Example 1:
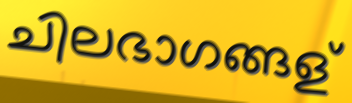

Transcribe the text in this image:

ചിലഭാഗങ്ങള്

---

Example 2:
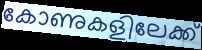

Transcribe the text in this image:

കോണുകളിലേക്ക്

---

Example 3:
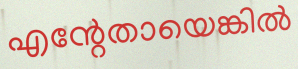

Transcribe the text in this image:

എന്റേതായെങ്കിൽ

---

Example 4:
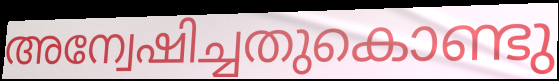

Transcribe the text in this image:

അന്വേഷിച്ചതുകൊണ്ടു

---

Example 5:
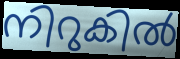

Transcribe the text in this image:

നിറുകിൽ